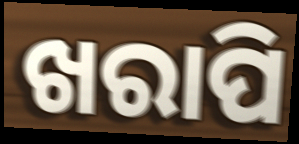
ଖରାପି